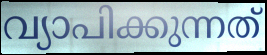
വ്യാപിക്കുന്നത്